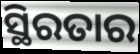
ସ୍ଥିରତାର